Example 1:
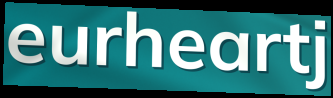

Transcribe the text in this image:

eurheartj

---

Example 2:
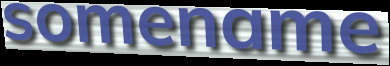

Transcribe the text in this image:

somename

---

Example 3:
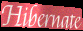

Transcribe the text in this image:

Hibernate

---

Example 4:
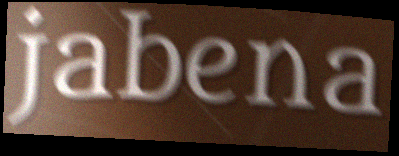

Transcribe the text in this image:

jabena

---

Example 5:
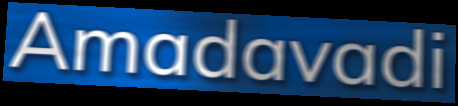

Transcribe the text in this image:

Amadavadi